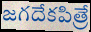
జగదేకపిత్రే